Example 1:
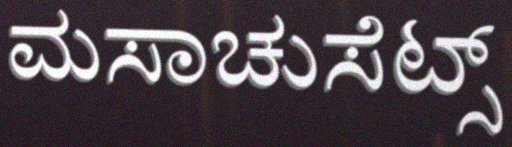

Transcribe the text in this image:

ಮಸಾಚುಸೆಟ್ಸ್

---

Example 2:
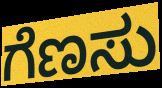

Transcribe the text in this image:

ಗೆಣಸು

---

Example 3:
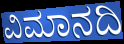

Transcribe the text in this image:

ವಿಮಾನದಿ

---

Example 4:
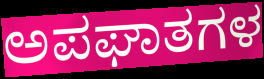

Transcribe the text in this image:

ಅಪಘಾತಗಳ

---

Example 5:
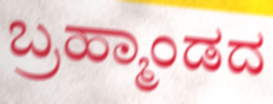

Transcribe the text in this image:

ಬ್ರಹ್ಮಾಂಡದ